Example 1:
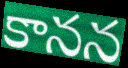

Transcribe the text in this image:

కానన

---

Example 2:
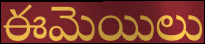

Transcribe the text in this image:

ఈమెయిలు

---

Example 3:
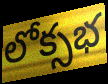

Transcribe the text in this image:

లోక్సభ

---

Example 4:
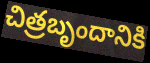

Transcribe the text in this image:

చిత్రబృందానికి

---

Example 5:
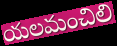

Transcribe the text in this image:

యలమంచిలి